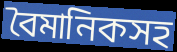
বৈমানিকসহ